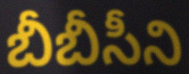
బీబీసీని